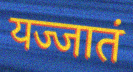
यज्जातं